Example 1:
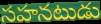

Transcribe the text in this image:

సహనటుడు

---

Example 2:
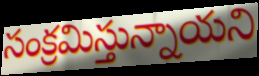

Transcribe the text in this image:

సంక్రమిస్తున్నాయని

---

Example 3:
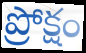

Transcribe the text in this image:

ప్రోక్షం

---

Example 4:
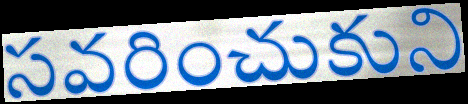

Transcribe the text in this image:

సవరించుకుని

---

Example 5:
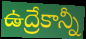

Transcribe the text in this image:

ఉద్రేకాన్నీ